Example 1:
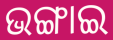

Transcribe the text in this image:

ଭଙ୍ଗାଇ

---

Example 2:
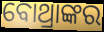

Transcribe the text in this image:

ବୋଥ୍ରାଙ୍କର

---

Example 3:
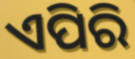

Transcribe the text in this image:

ଏପିରି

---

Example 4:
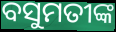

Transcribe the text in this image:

ବସୁମତୀଙ୍କ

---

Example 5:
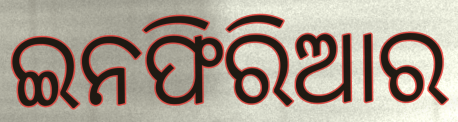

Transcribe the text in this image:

ଇନଫିରିଆର